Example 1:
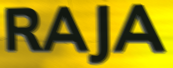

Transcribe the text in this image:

RAJA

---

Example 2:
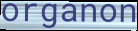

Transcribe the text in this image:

organon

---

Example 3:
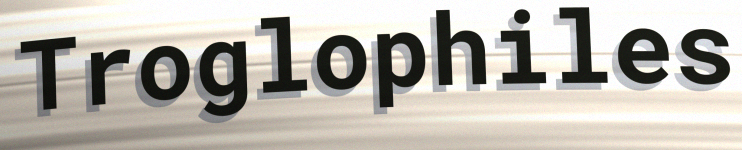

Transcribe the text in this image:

Troglophiles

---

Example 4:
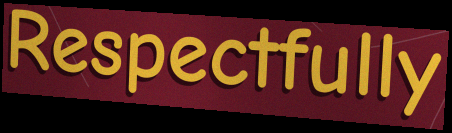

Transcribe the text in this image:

Respectfully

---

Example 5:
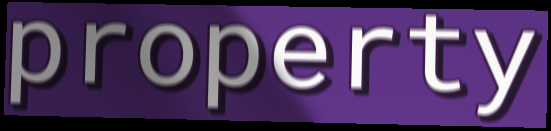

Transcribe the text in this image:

property